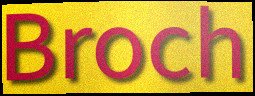
Broch